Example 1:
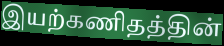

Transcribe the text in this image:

இயற்கணிதத்தின்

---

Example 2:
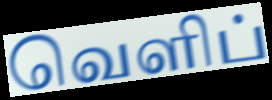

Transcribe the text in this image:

வெளிப்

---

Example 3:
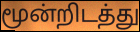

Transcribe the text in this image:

மூன்றிடத்து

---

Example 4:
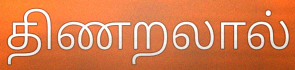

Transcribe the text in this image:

திணறலால்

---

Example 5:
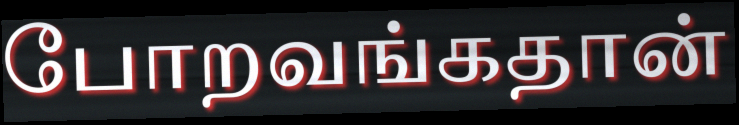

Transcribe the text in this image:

போறவங்கதான்